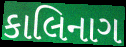
કાલિનાગ